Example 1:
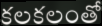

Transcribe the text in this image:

కలకలంతో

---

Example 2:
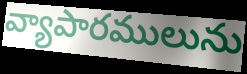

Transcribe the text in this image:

వ్యాపారములును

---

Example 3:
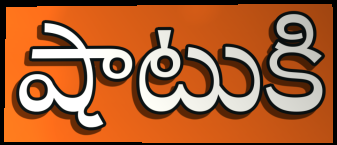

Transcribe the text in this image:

షాటుకి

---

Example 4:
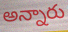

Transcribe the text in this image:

అన్నారు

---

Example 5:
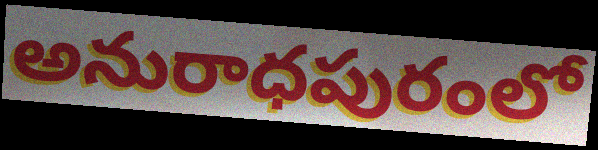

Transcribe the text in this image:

అనురాధపురంలో